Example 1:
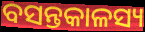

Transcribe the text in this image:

ବସନ୍ତକାଳସ୍ୟ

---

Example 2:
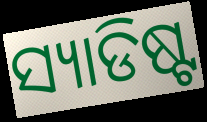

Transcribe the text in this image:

ସ୍ୟାଡିଷ୍ଟ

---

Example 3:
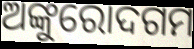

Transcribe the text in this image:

ଅଙ୍କୁରୋଦଗମ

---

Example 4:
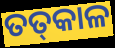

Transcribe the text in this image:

ତତ୍‌କାଳ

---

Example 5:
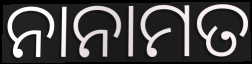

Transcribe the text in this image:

ନାନାମତ